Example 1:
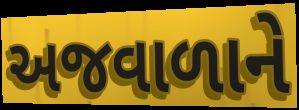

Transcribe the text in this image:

અજવાળાને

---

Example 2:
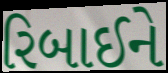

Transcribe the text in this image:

રિબાઈને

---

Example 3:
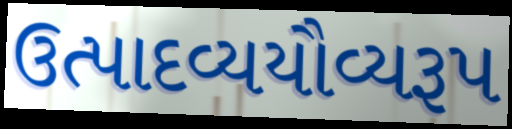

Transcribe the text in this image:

ઉત્પાદવ્યયૌવ્યરૂપ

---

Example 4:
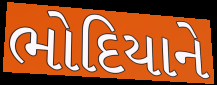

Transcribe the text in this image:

ભોદિયાને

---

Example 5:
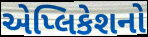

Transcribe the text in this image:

એપ્લિકેશનો